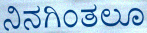
ನಿನಗಿಂತಲೂ